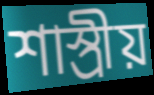
শাস্ত্ৰীয়